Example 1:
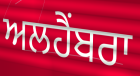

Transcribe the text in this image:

ਅਲਹੈਂਬਰਾ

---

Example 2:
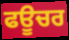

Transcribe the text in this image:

ਫਊਚਰ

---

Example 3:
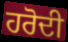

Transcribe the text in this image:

ਹਰੋਦੀ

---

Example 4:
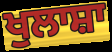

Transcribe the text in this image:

ਖੁਲਾਸ਼ਾ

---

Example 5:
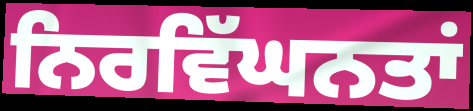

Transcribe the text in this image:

ਨਿਰਵਿੱਘਨਤਾਂ